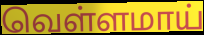
வெள்ளமாய்